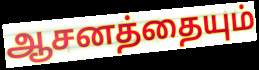
ஆசனத்தையும்